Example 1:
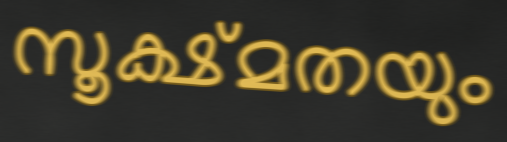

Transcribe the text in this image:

സൂക്ഷ്മതയും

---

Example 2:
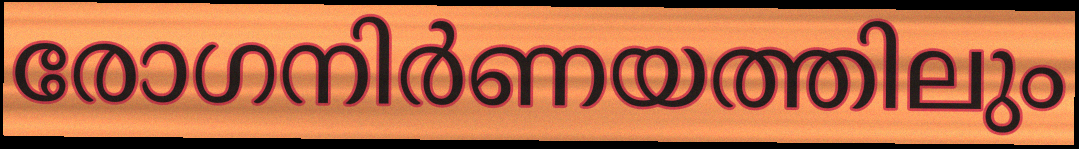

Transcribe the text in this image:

രോഗനിർണയത്തിലും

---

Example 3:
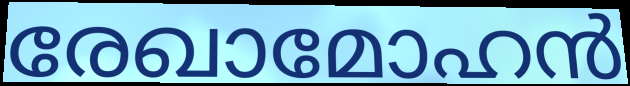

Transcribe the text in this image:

രേഖാമോഹൻ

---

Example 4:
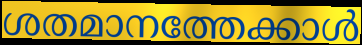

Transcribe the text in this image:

ശതമാനത്തേക്കാൾ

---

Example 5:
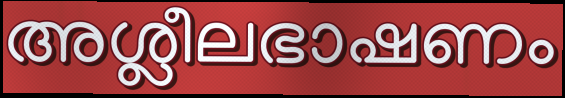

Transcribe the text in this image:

അശ്ലീലഭാഷണം